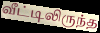
வீட்டிலிருந்த